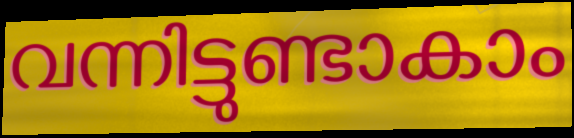
വന്നിട്ടുണ്ടാകാം